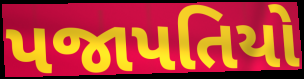
પજાપતિયો